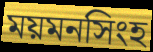
ময়মনসিংহ